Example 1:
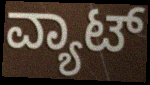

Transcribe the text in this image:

ವ್ಯಾಟ್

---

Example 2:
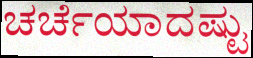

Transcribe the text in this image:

ಚರ್ಚೆಯಾದಷ್ಟು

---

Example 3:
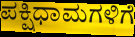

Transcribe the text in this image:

ಪಕ್ಷಿಧಾಮಗಳಿಗೆ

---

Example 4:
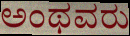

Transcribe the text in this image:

ಅಂಥವರು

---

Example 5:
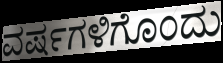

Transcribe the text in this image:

ವರ್ಷಗಳಿಗೊಂದು